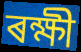
ৰক্ষী